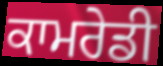
ਕਾਮਰੇਡੀ